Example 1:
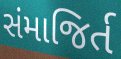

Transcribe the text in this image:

સંમાજિર્ત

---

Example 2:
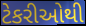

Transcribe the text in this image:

ટેકરીઓથી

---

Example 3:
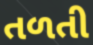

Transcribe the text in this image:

તળતી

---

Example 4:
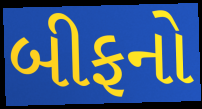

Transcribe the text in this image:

બીફનો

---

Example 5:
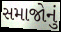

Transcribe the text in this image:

સમાજોનું